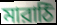
মারাঠি